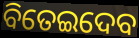
ବିତେଇଦେବ